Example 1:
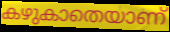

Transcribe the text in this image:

കഴുകാതെയാണ്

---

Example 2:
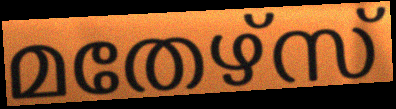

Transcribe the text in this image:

മതേഴ്സ്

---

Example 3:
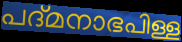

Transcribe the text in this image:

പദ്മനാഭപിള്ള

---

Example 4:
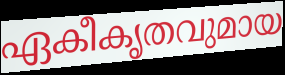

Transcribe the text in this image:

ഏകീകൃതവുമായ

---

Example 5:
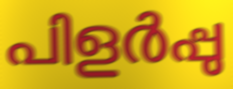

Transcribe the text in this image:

പിളർപ്പു